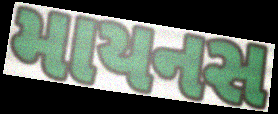
માયનસ